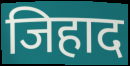
जिहाद